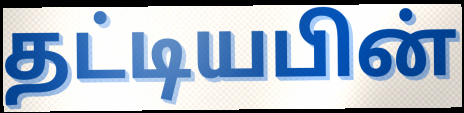
தட்டியபின்